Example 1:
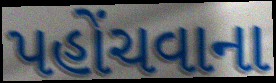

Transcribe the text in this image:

પહોંચવાના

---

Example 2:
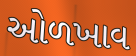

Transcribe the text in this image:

ઓળખાવ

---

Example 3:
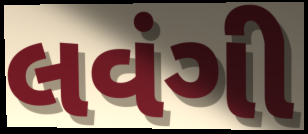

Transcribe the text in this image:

લવંગી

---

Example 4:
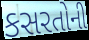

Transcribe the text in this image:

કસરતોની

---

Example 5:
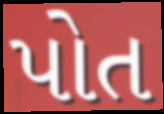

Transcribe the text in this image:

પોત